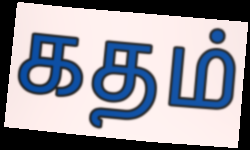
கதம்